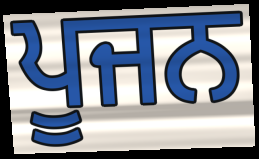
ਪੂਜਨ